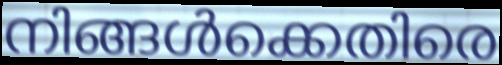
നിങ്ങൾക്കെതിരെ